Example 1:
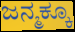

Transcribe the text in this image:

ಜನ್ಮಕ್ಕೂ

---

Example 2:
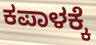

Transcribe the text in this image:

ಕಪಾಳಕ್ಕೆ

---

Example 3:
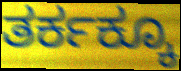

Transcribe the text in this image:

ತರ್ಕಕ್ಕೂ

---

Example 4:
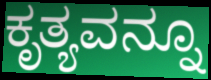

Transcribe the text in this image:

ಕೃತ್ಯವನ್ನೂ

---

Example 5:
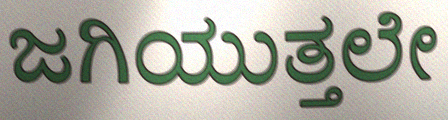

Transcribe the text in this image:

ಜಗಿಯುತ್ತಲೇ